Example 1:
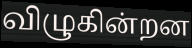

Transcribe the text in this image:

விழுகின்றன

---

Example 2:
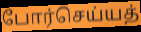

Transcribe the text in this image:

போர்செய்யத்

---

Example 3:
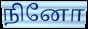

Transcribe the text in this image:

நினோ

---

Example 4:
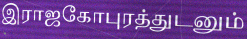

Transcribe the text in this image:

இராஜகோபுரத்துடனும்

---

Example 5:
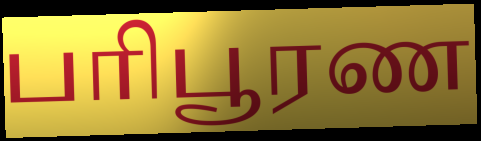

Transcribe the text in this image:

பரிபூரண